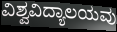
ವಿಶ್ವವಿದ್ಯಾಲಯವು